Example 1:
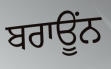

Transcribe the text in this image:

ਬਰਾਊਂਨ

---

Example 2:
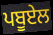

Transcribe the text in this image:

ਪਬੂਏਲ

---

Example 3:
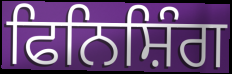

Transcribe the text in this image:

ਫਿਨਿਸ਼ਿੰਗ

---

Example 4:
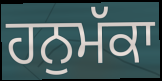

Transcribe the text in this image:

ਹਨੁਮੱਕਾ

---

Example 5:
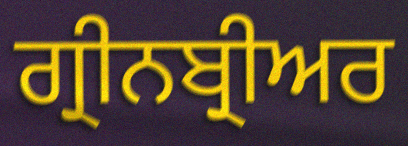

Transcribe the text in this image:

ਗ੍ਰੀਨਬ੍ਰੀਅਰ